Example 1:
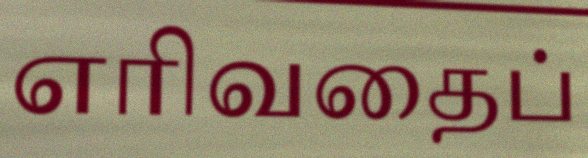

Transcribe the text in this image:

எரிவதைப்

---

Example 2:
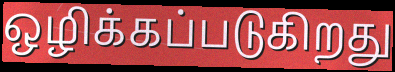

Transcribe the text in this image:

ஒழிக்கப்படுகிறது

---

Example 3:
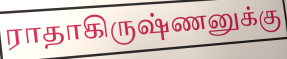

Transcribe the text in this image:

ராதாகிருஷ்ணனுக்கு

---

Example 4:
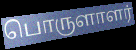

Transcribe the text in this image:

பொருளாளர்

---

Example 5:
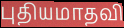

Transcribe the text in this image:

புதியமாதவி